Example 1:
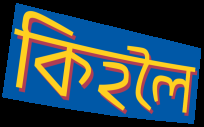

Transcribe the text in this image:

কিহলৈ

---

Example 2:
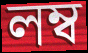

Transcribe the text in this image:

লম্ব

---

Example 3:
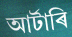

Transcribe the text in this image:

আৰ্টাৰি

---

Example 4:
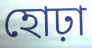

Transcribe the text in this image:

হোঢ়া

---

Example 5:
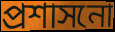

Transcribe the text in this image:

প্ৰশাসনো